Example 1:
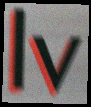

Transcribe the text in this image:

Iv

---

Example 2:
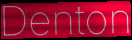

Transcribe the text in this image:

Denton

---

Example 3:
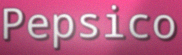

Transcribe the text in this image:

Pepsico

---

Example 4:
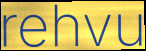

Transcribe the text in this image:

rehvu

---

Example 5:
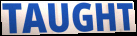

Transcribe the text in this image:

TAUGHT